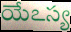
యేఽస్య